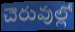
చెరువుల్లో